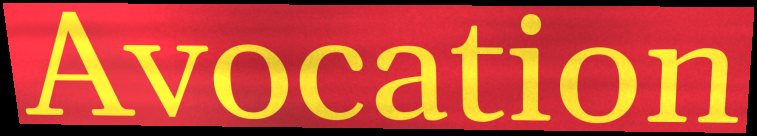
Avocation